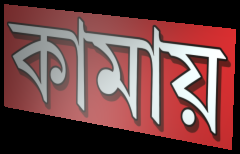
কামায়